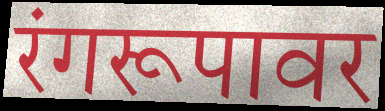
रंगरूपावर